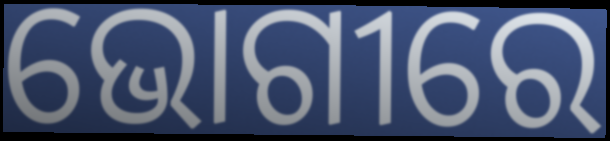
ଭୋଗୀରେ